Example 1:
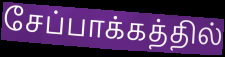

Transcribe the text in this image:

சேப்பாக்கத்தில்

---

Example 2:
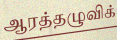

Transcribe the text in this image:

ஆரத்தழுவிக்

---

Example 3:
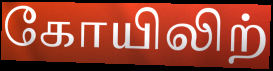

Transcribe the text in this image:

கோயிலிற்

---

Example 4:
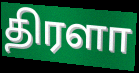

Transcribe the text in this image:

திரளா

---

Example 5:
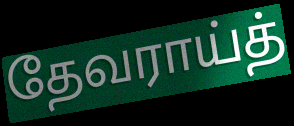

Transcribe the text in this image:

தேவராய்த்